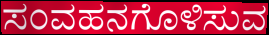
ಸಂವಹನಗೊಳಿಸುವ